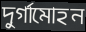
দুর্গামোহন